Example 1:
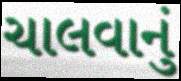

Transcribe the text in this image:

ચાલવાનું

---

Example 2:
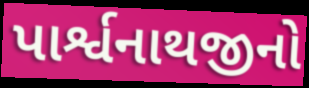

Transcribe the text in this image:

પાર્શ્વનાથજીનો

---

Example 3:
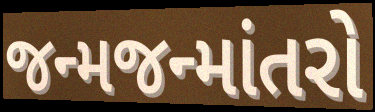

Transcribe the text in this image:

જન્મજન્માંતરો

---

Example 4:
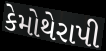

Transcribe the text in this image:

કેમોથેરાપી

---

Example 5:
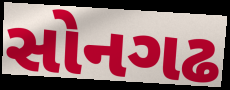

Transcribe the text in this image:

સોનગઢ